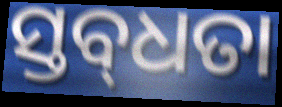
ସ୍ତବ୍‌ଧତା